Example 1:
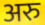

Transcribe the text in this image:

अरु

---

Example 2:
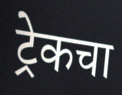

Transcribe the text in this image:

ट्रेकचा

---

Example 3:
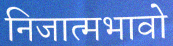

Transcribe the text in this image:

निजात्मभावो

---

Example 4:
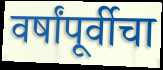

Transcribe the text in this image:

वर्षांपूर्वीचा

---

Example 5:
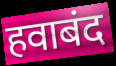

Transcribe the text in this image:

हवाबंद